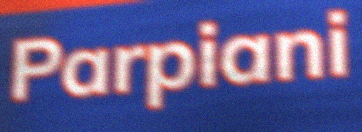
Parpiani